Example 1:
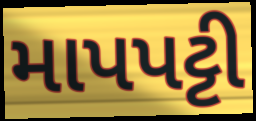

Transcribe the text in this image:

માપપટ્ટી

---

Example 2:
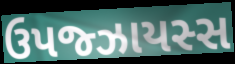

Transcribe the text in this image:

ઉપજ્ઝાયસ્સ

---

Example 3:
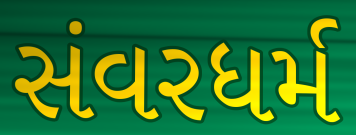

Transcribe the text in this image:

સંવરધર્મ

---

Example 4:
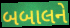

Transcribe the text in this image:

બબાલને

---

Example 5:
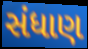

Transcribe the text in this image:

સંધાણ